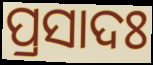
ପ୍ରସାଦଃ